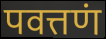
पवत्तणं